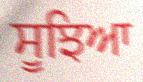
ਸੂਝਿਆ